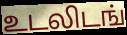
உடலிடங்